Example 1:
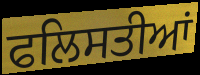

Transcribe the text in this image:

ਫਲਿਸਤੀਆਂ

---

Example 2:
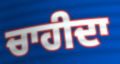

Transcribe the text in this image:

ਚਾਹੀਦਾ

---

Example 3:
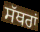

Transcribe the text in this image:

ਸੱਥਰਾਂ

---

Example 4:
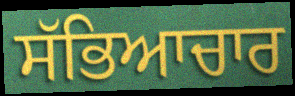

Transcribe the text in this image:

ਸੱਭਿਆਚਾਰ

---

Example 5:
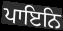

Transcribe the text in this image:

ਪਾਇਨਿ